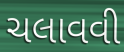
ચલાવવી